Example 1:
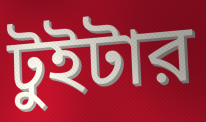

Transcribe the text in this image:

টুইটার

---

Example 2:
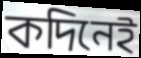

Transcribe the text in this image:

কদিনেই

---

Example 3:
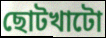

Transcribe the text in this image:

ছোটখাটো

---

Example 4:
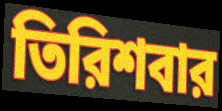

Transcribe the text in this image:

তিরিশবার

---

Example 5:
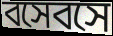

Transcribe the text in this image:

বসেবসে